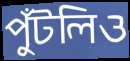
পুঁটলিও